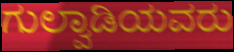
ಗುಲ್ವಾಡಿಯವರು